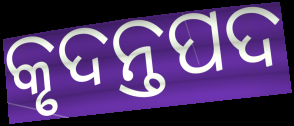
କୃଦନ୍ତପଦ